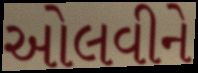
ઓલવીને